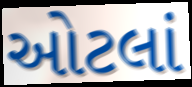
ઓટલાં